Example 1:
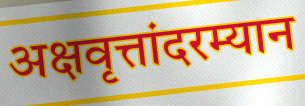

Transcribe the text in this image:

अक्षवृत्तांदरम्यान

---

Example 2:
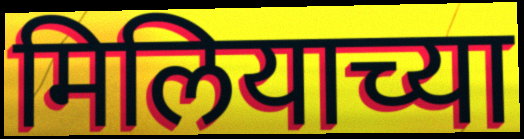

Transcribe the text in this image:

मिलियाच्या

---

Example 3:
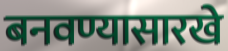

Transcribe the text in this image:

बनवण्यासारखे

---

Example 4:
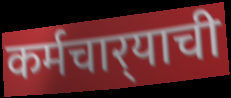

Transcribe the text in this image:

कर्मचार्‍याची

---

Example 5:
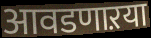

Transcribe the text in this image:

आवडणाऱया